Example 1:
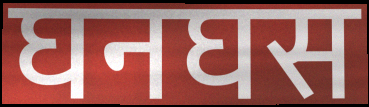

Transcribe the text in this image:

घनघस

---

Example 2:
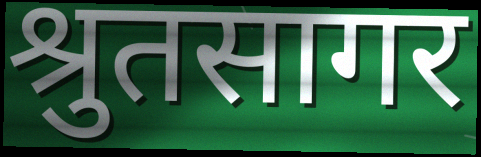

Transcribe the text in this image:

श्रुतसागर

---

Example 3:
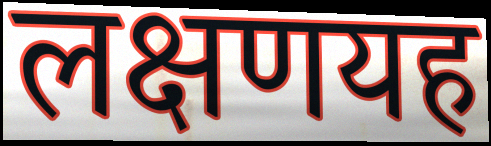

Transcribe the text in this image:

लक्षणयह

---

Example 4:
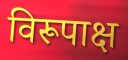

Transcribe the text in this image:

विरूपाक्ष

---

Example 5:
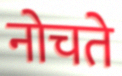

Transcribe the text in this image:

नोचते